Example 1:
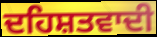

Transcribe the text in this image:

ਦਹਿਸ਼ਤਵਾਦੀ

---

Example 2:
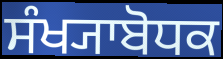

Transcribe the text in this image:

ਸੰਖ੍ਯਾਬੋਧਕ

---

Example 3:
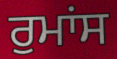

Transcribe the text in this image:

ਰੁਮਾਂਸ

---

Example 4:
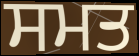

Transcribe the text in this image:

ਸਮਤ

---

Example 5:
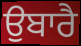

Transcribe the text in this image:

ਉਬਾਰੈ